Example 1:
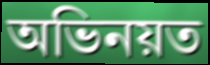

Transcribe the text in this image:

অভিনয়ত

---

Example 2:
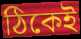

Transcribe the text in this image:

ঠিকেই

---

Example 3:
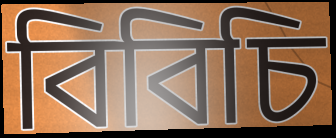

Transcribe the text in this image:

বিবিচি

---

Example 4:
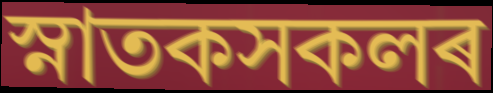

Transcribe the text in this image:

স্নাতকসকলৰ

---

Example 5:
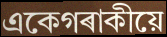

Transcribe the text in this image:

একেগৰাকীয়ে